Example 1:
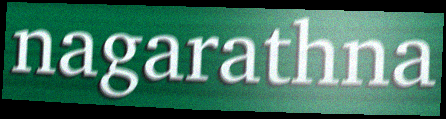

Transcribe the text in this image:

nagarathna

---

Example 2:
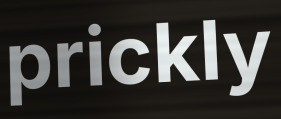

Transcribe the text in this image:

prickly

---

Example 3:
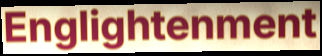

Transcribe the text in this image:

Englightenment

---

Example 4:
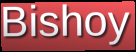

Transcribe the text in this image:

Bishoy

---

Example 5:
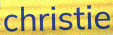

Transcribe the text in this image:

christie